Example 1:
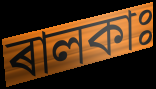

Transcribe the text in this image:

ৰালকাঃ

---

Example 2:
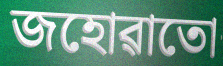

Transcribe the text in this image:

জহোৱাতো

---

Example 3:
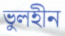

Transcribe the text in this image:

ভুলহীন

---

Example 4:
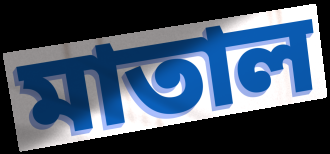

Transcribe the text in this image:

মাতাল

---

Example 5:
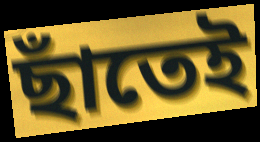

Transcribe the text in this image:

ছাঁতেই